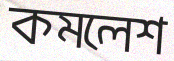
কমলেশ